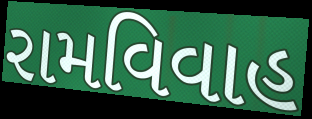
રામવિવાહ